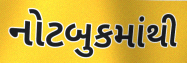
નોટબુકમાંથી